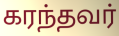
கரந்தவர்